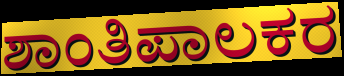
ಶಾಂತಿಪಾಲಕರ